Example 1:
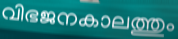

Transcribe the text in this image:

വിഭജനകാലത്തും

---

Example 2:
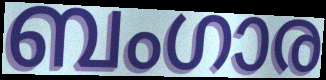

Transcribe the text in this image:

ബംഗാര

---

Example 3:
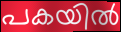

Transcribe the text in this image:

പകയിൽ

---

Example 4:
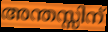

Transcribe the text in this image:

അന്തസ്സിന്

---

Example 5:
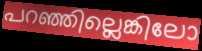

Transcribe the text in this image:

പറഞ്ഞില്ലെങ്കിലോ